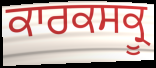
ਕਾਰਕਸਕ੍ਰੂ